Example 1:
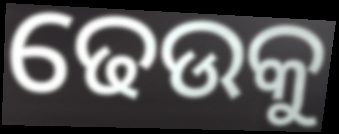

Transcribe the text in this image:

ଢେଉକୁ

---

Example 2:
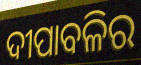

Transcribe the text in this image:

ଦୀପାବଳିର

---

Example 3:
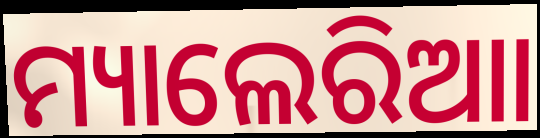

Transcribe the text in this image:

ମ୍ୟାଲେରିଆା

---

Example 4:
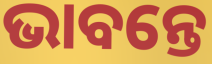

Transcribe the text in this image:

ଭାବନ୍ତେ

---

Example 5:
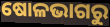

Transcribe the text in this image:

ଷୋଳଭାଗରୁ